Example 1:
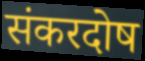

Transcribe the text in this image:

संकरदोष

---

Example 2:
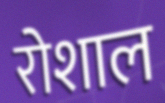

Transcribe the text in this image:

रोशाल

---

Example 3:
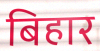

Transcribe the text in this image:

बिहार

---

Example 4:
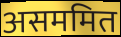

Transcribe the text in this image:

असममित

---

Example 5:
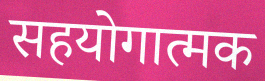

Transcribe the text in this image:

सहयोगात्मक